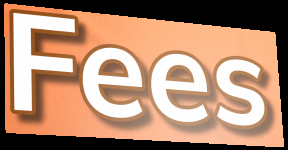
Fees